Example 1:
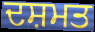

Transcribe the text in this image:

ਦਸ਼ਮਤ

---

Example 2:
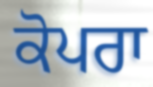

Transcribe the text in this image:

ਕੋਪਰਾ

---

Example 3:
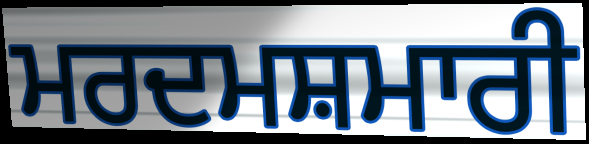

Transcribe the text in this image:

ਮਰਦਮਸ਼ਮਾਰੀ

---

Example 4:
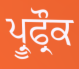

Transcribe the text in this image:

ਪ੍ਰੂਫ੍ਰੌਕ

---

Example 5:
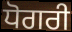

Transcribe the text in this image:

ਧੋਗਰੀ